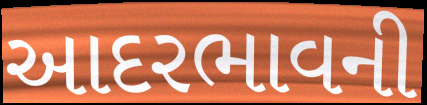
આદરભાવની